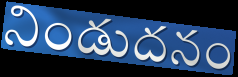
నిండుదనం